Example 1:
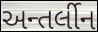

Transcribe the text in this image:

અન્તર્લીન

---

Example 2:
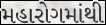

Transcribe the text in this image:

મહારોગમાંથી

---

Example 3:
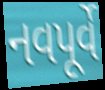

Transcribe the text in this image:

નવપૂર્વે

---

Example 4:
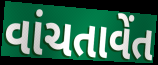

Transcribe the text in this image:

વાંચતાવેંત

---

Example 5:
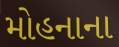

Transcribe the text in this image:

મોહનાના